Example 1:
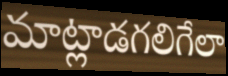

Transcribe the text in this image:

మాట్లాడగలిగేలా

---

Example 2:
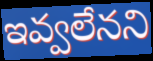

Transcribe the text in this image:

ఇవ్వలేనని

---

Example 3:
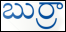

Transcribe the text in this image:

బుర్రా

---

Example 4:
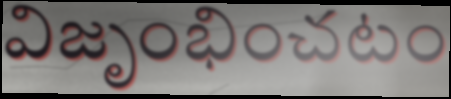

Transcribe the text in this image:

విజృంభించటం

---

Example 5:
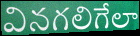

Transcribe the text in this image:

వినగలిగేలా